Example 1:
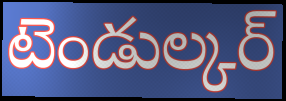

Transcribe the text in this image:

టెండుల్కర్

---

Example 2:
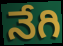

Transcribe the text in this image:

నేగి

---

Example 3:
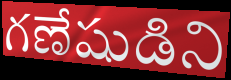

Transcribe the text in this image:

గణేషుడిని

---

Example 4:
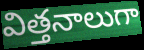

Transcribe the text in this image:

విత్తనాలుగా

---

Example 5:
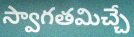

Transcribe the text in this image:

స్వాగతమిచ్చే